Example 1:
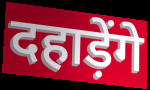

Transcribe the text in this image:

दहाड़ेंगे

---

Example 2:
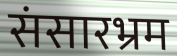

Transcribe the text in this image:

संसारभ्रम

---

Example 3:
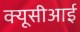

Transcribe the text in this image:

क्यूसीआई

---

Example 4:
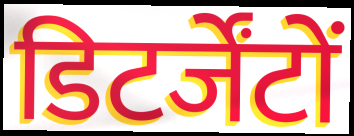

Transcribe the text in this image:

डिटर्जेंटों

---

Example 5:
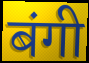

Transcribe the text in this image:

बंगी